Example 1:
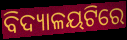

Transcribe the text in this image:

ବିଦ୍ୟାଳୟଟିରେ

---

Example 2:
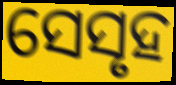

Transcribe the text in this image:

ସେସୃହ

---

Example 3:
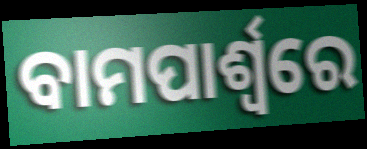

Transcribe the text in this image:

ବାମପାର୍ଶ୍ଵରେ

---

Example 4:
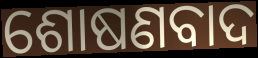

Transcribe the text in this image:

ଶୋଷଣବାଦ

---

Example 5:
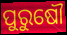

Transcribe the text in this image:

ପୁରୁଷୌ